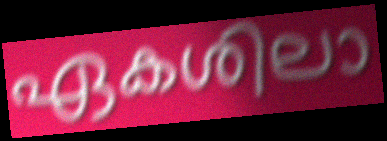
ഏകശിലാ